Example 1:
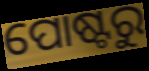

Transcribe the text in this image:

ପୋଷ୍ଟରୁ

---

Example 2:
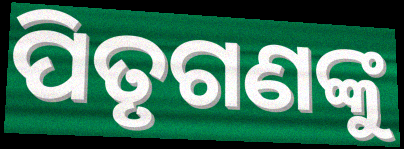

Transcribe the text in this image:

ପିତୃଗଣଙ୍କୁ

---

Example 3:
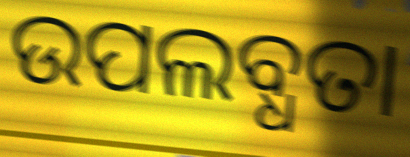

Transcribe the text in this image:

ଉପଲବ୍ଧତା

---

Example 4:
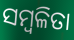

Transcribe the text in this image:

ସମ୍ବଳିତା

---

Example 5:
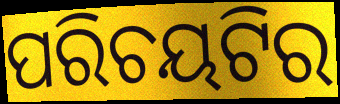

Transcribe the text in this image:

ପରିଚୟଟିର